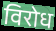
विरोध